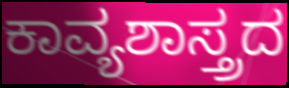
ಕಾವ್ಯಶಾಸ್ತ್ರದ